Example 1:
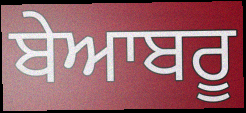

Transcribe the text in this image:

ਬੇਆਬਰੂ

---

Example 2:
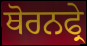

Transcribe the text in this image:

ਥੋਰਨਫ੍ਰੇ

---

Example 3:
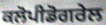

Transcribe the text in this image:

ਕਲੋਪੀਡੋਗਰੇਲ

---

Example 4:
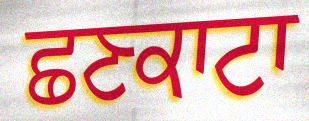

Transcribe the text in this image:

ਛਣਕਾਟਾ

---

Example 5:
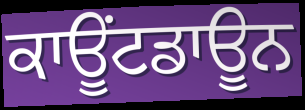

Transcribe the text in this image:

ਕਾਊਂਟਡਾਊਨ